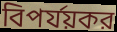
বিপর্যয়কর